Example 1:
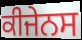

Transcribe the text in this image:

ਕੀਜੇਨਸ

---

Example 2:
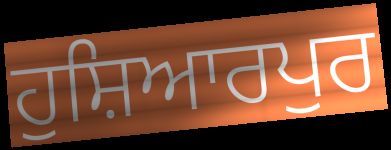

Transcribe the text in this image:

ਹੁਸ਼ਿਆਰਪੁਰ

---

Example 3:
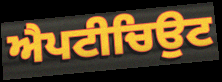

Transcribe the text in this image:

ਐਪਟੀਚਿਉਟ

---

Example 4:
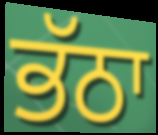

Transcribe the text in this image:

ਭੱਠਾ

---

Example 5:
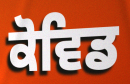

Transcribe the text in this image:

ਕੋਵਿਡ